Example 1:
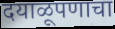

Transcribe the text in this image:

दयाळूपणाचा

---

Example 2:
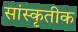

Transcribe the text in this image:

सांस्कृतीक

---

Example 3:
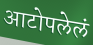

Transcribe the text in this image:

आटोपलेलं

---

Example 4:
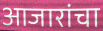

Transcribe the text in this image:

आजारांचा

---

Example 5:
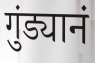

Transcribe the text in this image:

गुंड्यानं